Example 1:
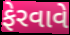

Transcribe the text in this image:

ફેરવાવે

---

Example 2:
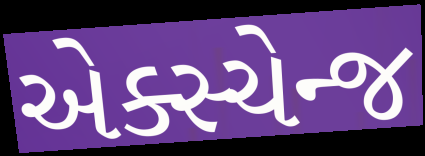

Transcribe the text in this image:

એક્સ્ચેન્જ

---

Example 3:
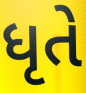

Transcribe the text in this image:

ધૃતે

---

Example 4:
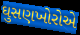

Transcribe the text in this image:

ઘુસણખોરોએ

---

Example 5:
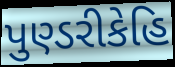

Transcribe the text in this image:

પુણ્ડરીકેહિ